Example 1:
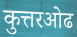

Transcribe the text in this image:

कुत्तरओढ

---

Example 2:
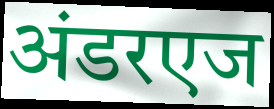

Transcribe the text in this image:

अंडरएज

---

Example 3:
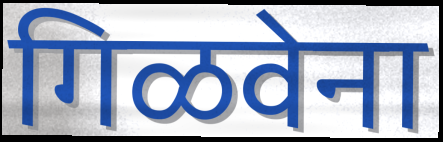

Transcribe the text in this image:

गिळवेना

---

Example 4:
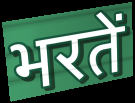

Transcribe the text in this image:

भरतें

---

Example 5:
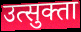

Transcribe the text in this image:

उत्सुक्ता